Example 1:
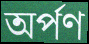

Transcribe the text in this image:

অৰ্পণ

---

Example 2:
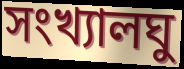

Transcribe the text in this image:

সংখ্যালঘু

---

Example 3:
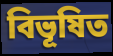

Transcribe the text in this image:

বিভূষিত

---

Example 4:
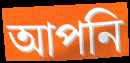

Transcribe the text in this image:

আপনি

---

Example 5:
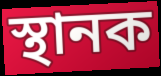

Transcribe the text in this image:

স্থানক